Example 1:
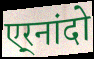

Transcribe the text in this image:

एर्नांदो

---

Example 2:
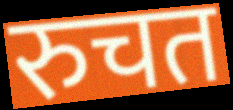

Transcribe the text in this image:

रुचत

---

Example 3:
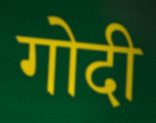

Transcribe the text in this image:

गोदी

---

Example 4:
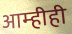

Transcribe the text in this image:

आम्हीही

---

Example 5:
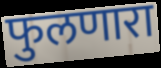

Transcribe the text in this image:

फुलणारा